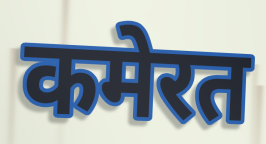
कमेरत